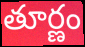
తూర్ణం